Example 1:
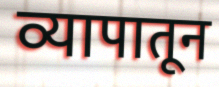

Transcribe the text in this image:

व्यापातून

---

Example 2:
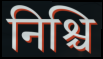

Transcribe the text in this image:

निश्चि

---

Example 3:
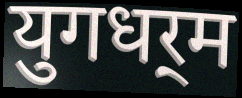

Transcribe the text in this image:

युगधर्म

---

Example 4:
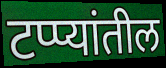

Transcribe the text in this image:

टप्प्यांतील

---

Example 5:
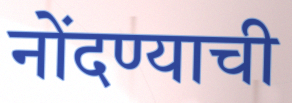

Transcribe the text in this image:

नोंदण्याची